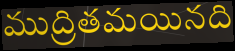
ముద్రితమయినది